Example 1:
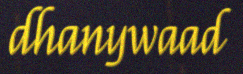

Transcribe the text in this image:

dhanywaad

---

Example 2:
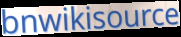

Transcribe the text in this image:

bnwikisource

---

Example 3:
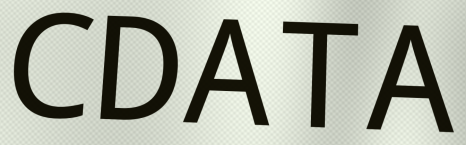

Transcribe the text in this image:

CDATA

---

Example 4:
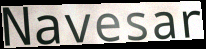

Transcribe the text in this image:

Navesar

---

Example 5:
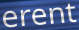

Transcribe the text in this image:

erent